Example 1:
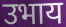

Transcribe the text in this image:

उभाय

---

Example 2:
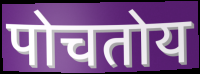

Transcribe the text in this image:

पोचतोय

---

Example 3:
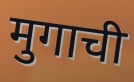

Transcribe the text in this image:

मुगाची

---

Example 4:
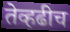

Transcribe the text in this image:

तेव्हढीच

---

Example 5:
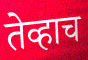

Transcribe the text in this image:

तेव्हाच